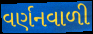
વર્ણનવાળી